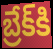
బ్రేక్‌కి